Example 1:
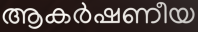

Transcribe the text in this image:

ആകർഷണീയ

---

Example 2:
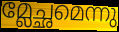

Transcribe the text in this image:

മ്ലേച്ഛമെന്നു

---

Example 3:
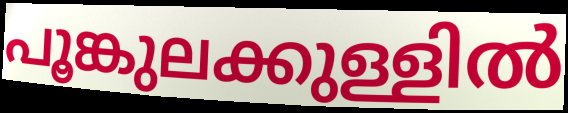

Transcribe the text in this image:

പൂങ്കുലക്കുള്ളിൽ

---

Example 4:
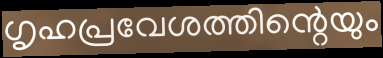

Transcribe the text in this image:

ഗൃഹപ്രവേശത്തിന്റെയും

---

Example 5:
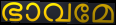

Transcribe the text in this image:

ഭാവമേ